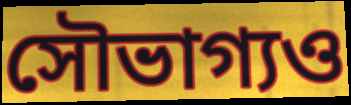
সৌভাগ্যও